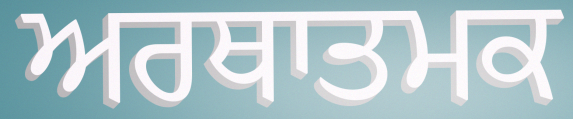
ਅਰਥਾਤਮਕ